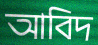
আবিদ